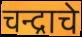
चन्द्राचे